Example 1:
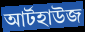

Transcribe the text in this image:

আর্টহাউজ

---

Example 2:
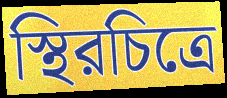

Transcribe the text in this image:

স্থিরচিত্রে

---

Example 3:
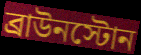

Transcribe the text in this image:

ব্রাউনস্টোন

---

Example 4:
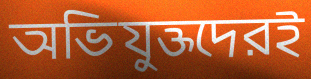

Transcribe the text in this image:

অভিযুক্তদেরই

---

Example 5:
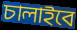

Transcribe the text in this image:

চালাইবে